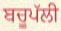
ਬਚੂਪੱਲੀ